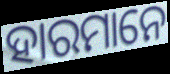
ହାରମାନେ